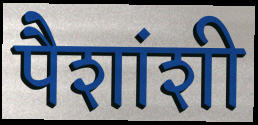
पैशांशी